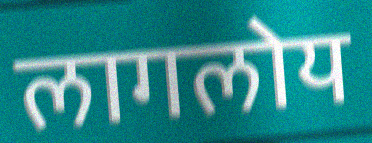
लागलोय